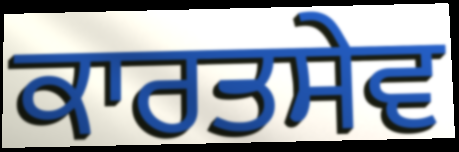
ਕਾਰਤਸੇਵ